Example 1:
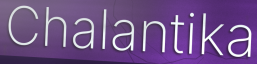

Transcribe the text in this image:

Chalantika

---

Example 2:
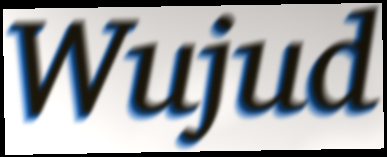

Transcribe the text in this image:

Wujud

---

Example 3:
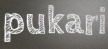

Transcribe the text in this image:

pukari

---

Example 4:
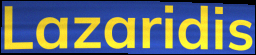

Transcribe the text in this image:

Lazaridis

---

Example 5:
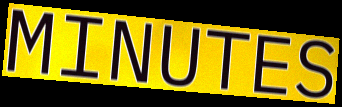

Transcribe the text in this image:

MINUTES